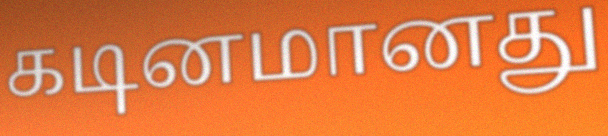
கடினமானது